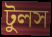
টুলস